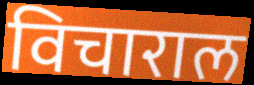
विचाराल